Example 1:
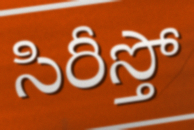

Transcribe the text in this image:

సిరీస్తో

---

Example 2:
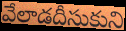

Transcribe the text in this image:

వేలాడదీసుకుని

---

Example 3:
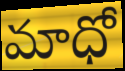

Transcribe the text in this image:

మాధో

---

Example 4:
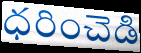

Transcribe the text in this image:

ధరించెడి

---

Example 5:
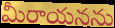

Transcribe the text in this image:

మీరాయనను